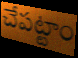
చేపట్టాం